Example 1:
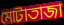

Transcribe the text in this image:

মোটাতাজা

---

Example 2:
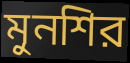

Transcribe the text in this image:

মুনশির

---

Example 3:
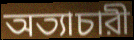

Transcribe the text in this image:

অত্যাচারী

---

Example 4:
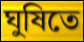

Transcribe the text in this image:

ঘুষিতে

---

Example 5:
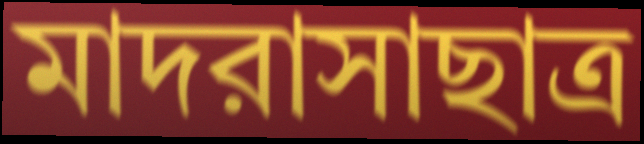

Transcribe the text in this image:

মাদরাসাছাত্র